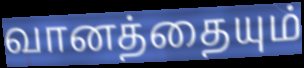
வானத்தையும்